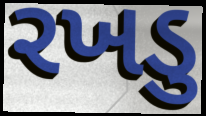
રખડુ